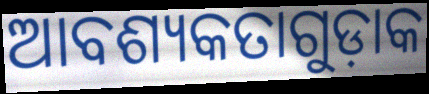
ଆବଶ୍ୟକତାଗୁଡ଼ାକ